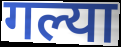
गल्या